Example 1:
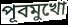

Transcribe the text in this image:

পূবমুখো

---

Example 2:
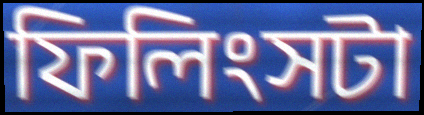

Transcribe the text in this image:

ফিলিংসটা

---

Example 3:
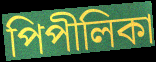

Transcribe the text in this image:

পিপীলিকা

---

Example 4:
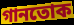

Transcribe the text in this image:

গানতোক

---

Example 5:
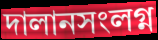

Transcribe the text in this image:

দালানসংলগ্ন